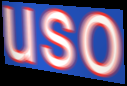
uso